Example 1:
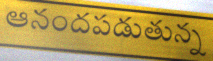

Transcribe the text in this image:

ఆనందపడుతున్న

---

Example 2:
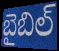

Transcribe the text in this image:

బైబిల్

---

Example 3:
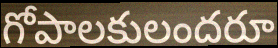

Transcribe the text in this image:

గోపాలకులందరూ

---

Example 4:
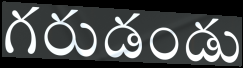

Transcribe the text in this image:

గరుడండు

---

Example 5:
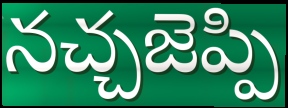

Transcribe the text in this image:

నచ్చజెప్పి